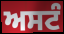
ਅਸਟੰ